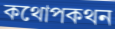
কথোপকথন